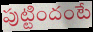
పుట్టిందంటే